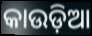
କାଉଡ଼ିଆ